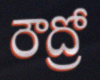
రౌద్రో